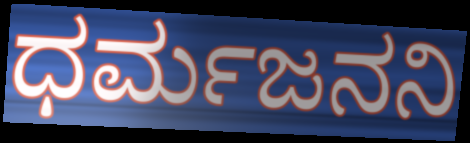
ಧರ್ಮಜನನಿ